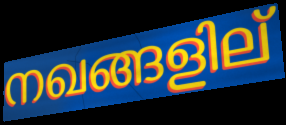
നഖങ്ങളില്